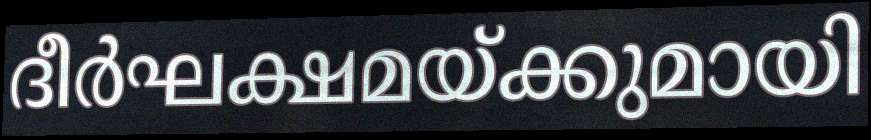
ദീർഘക്ഷമയ്ക്കുമായി